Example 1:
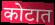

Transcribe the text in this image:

कोटात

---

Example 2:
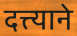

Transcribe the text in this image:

दत्त्याने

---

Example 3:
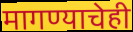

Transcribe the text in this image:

मागण्याचेही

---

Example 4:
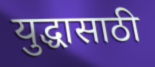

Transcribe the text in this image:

युद्धासाठी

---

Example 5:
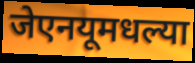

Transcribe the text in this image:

जेएनयूमधल्या